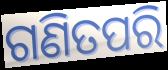
ଗଣିତପରି